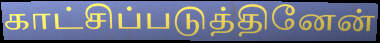
காட்சிப்படுத்தினேன்